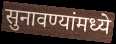
सुनावण्यांमध्ये